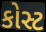
કોસ્ટ